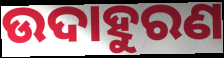
ଉଦାହୁରଣ